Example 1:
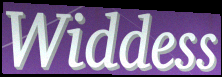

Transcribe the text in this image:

Widdess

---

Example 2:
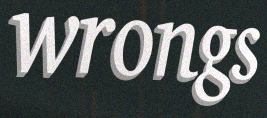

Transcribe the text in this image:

wrongs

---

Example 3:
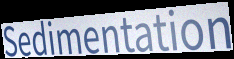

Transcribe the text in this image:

Sedimentation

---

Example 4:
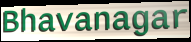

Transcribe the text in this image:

Bhavanagar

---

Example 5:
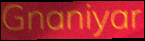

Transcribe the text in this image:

Gnaniyar